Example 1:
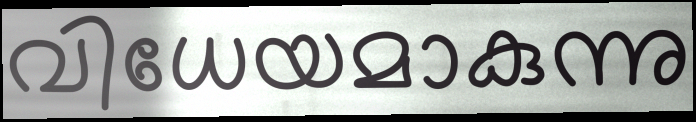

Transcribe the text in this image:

വിധേയമാകുന്നു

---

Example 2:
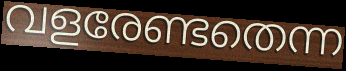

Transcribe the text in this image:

വളരേണ്ടതെന്ന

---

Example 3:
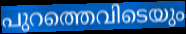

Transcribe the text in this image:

പുറത്തെവിടെയും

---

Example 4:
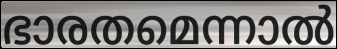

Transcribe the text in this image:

ഭാരതമെന്നാൽ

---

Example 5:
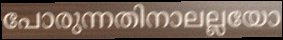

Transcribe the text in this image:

പോരുന്നതിനാലല്ലയോ